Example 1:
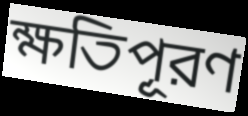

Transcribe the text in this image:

ক্ষতিপূরণ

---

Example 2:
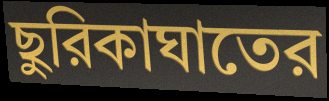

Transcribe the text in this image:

ছুরিকাঘাতের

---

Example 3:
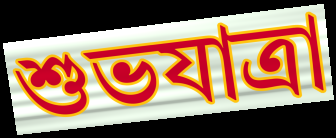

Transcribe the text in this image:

শুভযাত্রা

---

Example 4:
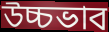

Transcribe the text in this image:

উচ্চভাব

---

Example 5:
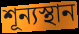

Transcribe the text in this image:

শূন্যস্থান